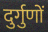
दुर्गुणों